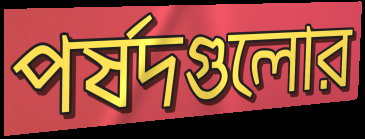
পর্ষদগুলোর